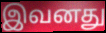
இவனது